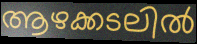
ആഴക്കടലിൽ